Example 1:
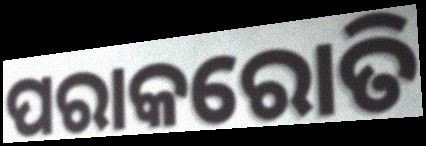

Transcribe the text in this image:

ପରାକରୋତି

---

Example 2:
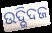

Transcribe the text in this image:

ଉଦ୍ଭିଦଜ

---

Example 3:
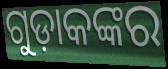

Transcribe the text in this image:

ଗୁଡ଼ାକଙ୍କର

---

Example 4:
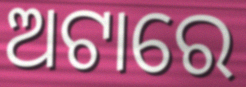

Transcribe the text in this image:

ଅଟାରେ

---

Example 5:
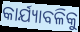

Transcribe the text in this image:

କାର୍ଯ୍ୟାବଳିକୁ